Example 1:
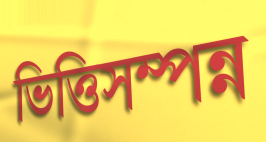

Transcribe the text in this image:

ভিত্তিসম্পন্ন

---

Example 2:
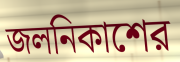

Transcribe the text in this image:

জলনিকাশের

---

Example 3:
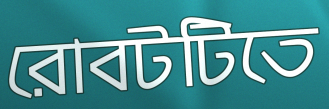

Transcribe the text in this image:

রোবটটিতে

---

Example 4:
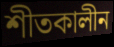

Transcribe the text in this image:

শীতকালীন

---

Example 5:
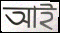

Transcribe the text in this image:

আই